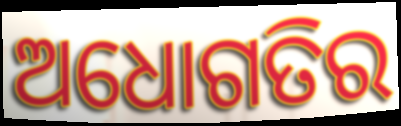
ଅଧୋଗତିର